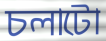
চলাটো